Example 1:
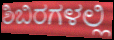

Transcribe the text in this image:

ಶಿಬಿರಗಳಲ್ಲಿ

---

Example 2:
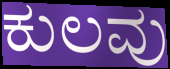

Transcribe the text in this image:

ಕುಲವು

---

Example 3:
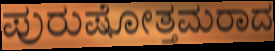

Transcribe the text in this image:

ಪುರುಷೋತ್ತಮರಾದ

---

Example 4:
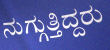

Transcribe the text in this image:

ನುಗ್ಗುತ್ತಿದ್ದರು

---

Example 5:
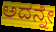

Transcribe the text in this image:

ಅದನ್ನೇ